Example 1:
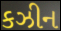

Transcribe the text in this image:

કઝીન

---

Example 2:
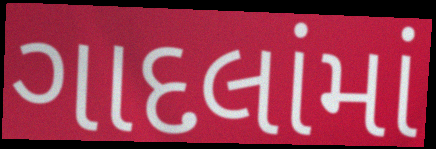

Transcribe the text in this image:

ગાદલાંમાં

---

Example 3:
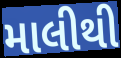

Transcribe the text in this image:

માલીથી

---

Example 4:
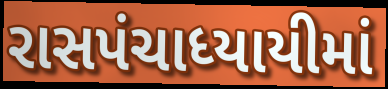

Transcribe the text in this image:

રાસપંચાધ્યાયીમાં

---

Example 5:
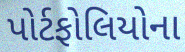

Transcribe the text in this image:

પોર્ટફોલિયોના